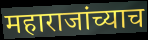
महाराजांच्याच